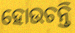
ହୋଉଚନ୍ତି